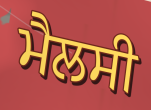
ਮੈਲਸੀ